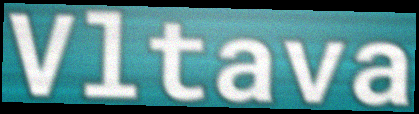
Vltava